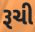
રૂચી